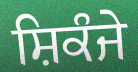
ਸ਼ਿਕੰਜੇ